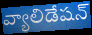
వ్యాలిడేషన్